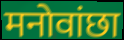
मनोवांछा